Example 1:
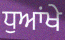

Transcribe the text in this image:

ਧੁਆਂਖੇ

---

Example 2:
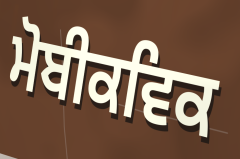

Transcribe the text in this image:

ਮੋਬੀਕਵਿਕ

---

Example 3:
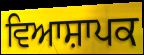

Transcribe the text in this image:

ਵਿਆਸ਼ਾਪਕ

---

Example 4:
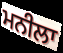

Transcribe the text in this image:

ਮਨੀਲਾ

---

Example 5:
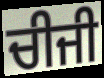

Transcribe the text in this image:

ਚੀਜੀ